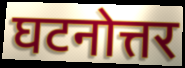
घटनोत्तर